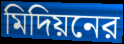
মিদিয়নের